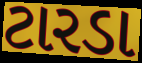
ટારડા